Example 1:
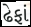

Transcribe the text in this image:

ઢેફાં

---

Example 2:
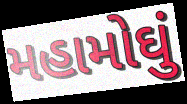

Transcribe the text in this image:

મહામોઘું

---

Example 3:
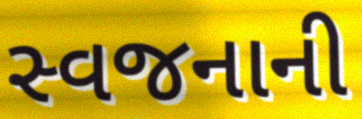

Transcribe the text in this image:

સ્વજનાની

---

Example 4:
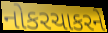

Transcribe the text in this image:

નોકરચાકરને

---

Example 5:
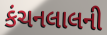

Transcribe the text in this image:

કંચનલાલની